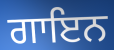
ਗਾਇਨ